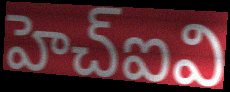
హెచ్ఐవి